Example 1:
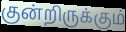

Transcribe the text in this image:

குன்றிருக்கும்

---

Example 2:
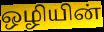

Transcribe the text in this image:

ஒழியின்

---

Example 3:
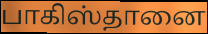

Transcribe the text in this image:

பாகிஸ்தானை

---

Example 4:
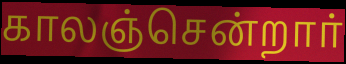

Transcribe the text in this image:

காலஞ்சென்றார்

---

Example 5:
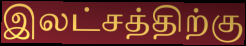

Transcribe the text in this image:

இலட்சத்திற்கு